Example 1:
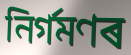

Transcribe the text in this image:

নিৰ্গমণৰ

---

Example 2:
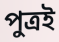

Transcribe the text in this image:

পুত্ৰই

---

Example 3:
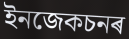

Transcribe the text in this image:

ইনজেকচনৰ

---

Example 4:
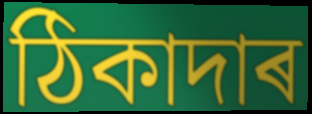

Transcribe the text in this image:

ঠিকাদাৰ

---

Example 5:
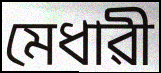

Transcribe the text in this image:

মেধাৱী